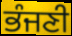
ਭੰਜਣੀ